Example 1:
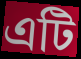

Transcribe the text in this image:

এটি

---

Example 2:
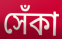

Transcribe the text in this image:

সেঁকা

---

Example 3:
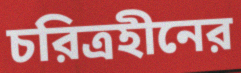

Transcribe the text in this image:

চরিত্রহীনের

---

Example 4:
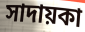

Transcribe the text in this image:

সাদায়কা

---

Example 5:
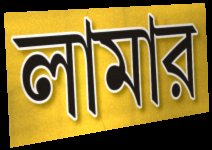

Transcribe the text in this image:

লামার